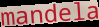
mandela